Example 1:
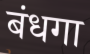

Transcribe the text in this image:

बंधगा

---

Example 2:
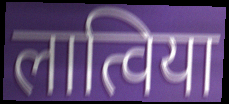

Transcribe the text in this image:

लात्विया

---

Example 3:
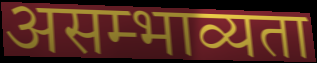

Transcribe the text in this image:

असम्भाव्यता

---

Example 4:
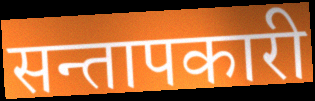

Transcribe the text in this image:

सन्तापकारी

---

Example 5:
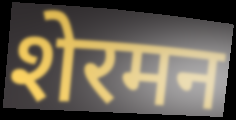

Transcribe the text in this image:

शेरमन